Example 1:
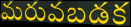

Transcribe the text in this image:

మరువబడక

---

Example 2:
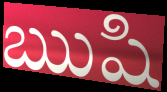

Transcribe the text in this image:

ఋషి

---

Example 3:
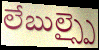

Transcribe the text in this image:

లేబుల్స్పై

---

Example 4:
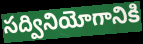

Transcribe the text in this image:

సద్వినియోగానికి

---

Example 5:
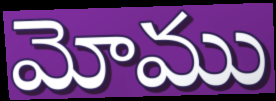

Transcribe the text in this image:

మోము